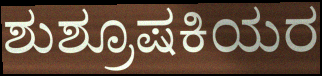
ಶುಶ್ರೂಷಕಿಯರ